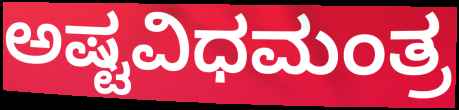
ಅಷ್ಟವಿಧಮಂತ್ರ